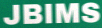
JBIMS